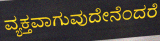
ವ್ಯಕ್ತವಾಗುವುದೇನೆಂದರೆ